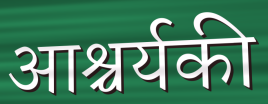
आश्चर्यकी